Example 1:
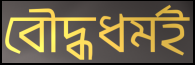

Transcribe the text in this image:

বৌদ্ধধৰ্মই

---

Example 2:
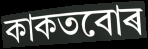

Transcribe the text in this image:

কাকতবোৰ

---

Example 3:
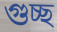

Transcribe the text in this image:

গুচ্ছ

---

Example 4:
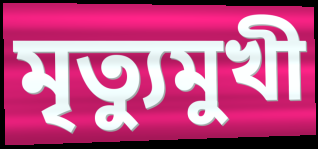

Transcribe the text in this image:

মৃত্যুমুখী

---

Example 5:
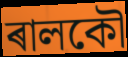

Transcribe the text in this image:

ৰালকৌ